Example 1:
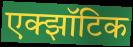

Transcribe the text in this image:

एक्झॉटिक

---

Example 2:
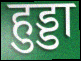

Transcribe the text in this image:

हुड्डा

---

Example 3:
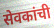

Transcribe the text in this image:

सेवकांची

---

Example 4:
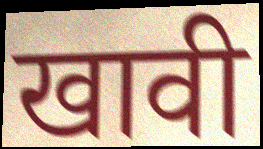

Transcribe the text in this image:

खावी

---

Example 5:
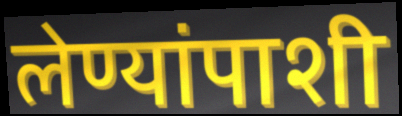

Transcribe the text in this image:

लेण्यांपाशी